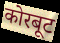
कोरबूट